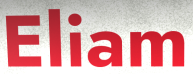
Eliam